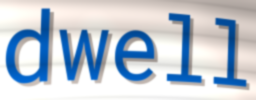
dwell